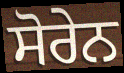
ਸੋਰੇਨ